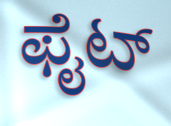
ಫೈಟ್